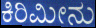
ಕಿರಿಮೀನು